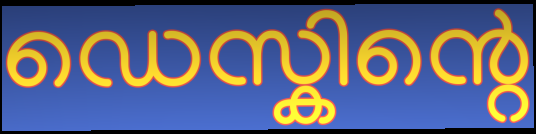
ഡെസ്കിന്റെ